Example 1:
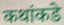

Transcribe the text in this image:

कथांकडे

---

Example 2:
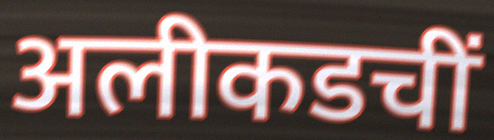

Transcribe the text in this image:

अलीकडचीं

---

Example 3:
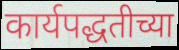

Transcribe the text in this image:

कार्यपद्धतीच्या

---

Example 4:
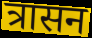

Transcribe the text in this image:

त्रासन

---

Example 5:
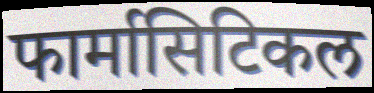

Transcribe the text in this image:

फार्मासिटिकल